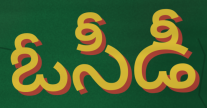
ఓసీడీ